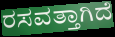
ರಸವತ್ತಾಗಿದೆ